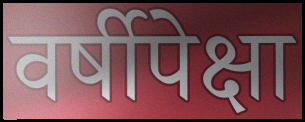
वर्षीपेक्षा